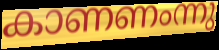
കാണണംന്നു